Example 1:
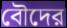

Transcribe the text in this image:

বৌদের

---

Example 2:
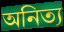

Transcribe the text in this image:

অনিত্য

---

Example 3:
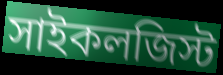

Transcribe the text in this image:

সাইকলজিস্ট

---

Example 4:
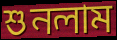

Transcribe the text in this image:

শুনলাম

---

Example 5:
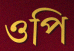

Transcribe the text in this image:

ওপি